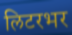
लिटरभर